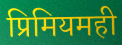
प्रिमियमही